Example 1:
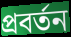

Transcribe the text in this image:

প্ৰবৰ্তন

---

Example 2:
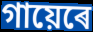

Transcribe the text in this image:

গায়েৰে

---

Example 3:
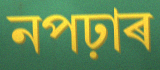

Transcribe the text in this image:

নপঢ়াৰ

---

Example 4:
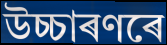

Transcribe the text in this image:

উচ্চাৰণৰে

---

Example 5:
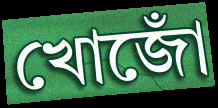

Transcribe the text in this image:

খোজোঁ